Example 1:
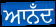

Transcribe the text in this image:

ਆਨਁਦ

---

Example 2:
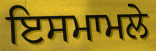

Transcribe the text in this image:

ਇਸਮਾਮਲੇ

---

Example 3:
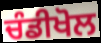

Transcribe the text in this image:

ਚੰਡੀਖੋਲ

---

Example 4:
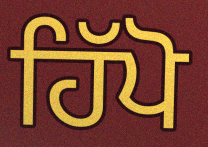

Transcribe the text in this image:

ਹਿੱਪੋ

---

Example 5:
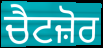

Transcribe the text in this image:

ਚੈਟਜ਼ੋਰ